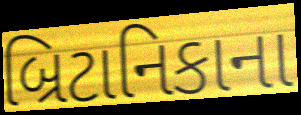
બ્રિટાનિકાના